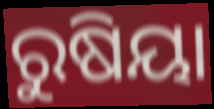
ରୁଷିୟା